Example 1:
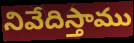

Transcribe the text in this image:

నివేదిస్తాము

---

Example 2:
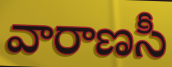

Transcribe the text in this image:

వారాణసీ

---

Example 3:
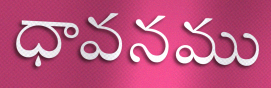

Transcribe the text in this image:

ధావనము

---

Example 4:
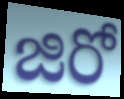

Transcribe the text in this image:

జిరో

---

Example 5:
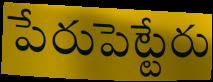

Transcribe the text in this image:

పేరుపెట్టేరు